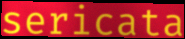
sericata